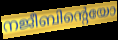
നജീബിന്റെയോ